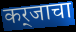
कर्जाचा